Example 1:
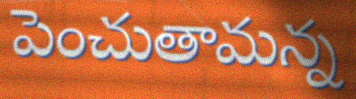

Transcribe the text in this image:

పెంచుతామన్న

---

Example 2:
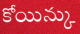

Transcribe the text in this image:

కోయిన్కు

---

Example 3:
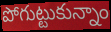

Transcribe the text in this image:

పోగుట్టుకున్నాం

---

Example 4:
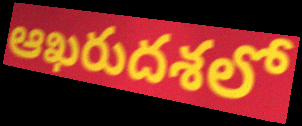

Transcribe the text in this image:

ఆఖరుదశలో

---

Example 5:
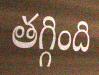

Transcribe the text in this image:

తగ్గింది